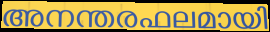
അനന്തരഫലമായി